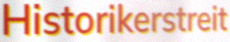
Historikerstreit